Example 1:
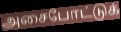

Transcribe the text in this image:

அசைபோட்டுக்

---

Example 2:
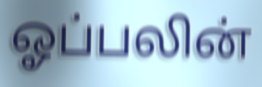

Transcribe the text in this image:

ஓப்பலின்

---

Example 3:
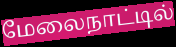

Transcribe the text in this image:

மேலைநாட்டில்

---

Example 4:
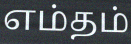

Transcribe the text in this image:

எம்தம்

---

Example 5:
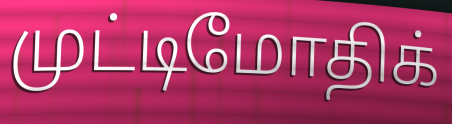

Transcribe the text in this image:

முட்டிமோதிக்